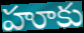
హూకు